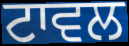
ਟਾਵਲ